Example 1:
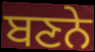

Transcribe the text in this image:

ਬਣਨੇ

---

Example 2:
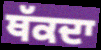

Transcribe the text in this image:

ਥੱਕਦਾ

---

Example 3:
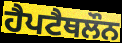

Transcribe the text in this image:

ਹੈਪਟੈਥਲੌਨ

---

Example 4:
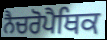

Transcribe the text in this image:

ਨੈਚਰੋਪੈਥਿਕ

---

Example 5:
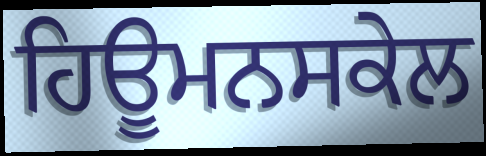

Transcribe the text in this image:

ਹਿਊਮਨਸਕੇਲ